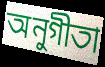
অনুগীতা